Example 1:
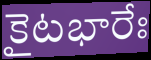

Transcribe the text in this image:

కైటభారేః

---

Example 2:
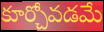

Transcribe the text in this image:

కూర్చోవడమే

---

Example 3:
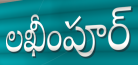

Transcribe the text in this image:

లఖీంపూర్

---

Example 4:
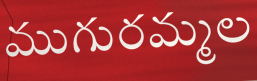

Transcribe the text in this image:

ముగురమ్మల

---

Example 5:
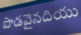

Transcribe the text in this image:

పొడవైనదియు